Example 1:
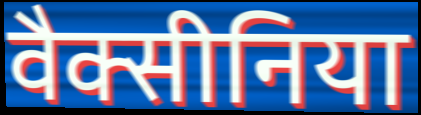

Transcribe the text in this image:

वैक्सीनिया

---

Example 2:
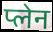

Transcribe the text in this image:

प्लेन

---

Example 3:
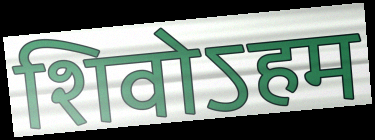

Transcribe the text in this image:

शिवोऽहम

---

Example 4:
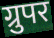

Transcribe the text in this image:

ग्रुपर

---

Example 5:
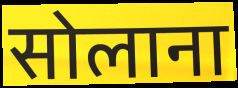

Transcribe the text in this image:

सोलाना